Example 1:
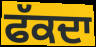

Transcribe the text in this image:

ਫੱਕਦਾ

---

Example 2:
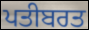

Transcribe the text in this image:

ਪਤੀਬਰਤ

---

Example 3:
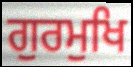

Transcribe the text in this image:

ਗੁਰਮੁਖਿ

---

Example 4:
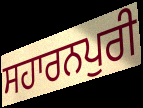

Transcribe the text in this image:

ਸਹਾਰਨਪੁਰੀ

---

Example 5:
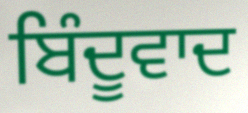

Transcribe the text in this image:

ਬਿੰਦੂਵਾਦ